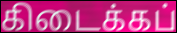
கிடைக்கப்